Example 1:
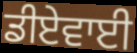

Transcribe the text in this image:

ਡੀਏਵਾਈ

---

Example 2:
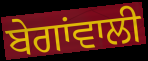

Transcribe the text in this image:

ਬੇਗਾਂਵਾਲੀ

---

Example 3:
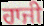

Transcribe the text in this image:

ਹਾਜੀ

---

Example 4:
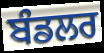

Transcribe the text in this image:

ਬੰਡਲਰ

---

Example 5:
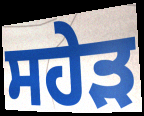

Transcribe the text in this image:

ਸਹੇੜ